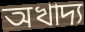
অখাদ্য